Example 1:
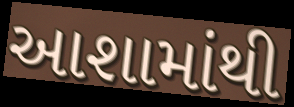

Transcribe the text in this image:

આશામાંથી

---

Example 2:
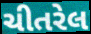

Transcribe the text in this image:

ચીતરેલ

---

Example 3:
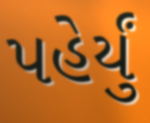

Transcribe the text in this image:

પહેર્યું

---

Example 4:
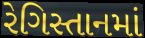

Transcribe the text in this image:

રેગિસ્તાનમાં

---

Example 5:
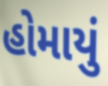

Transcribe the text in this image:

હોમાયું